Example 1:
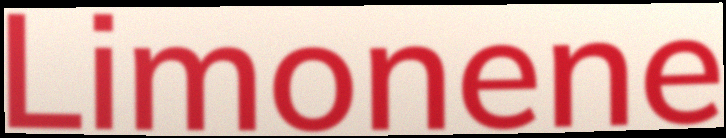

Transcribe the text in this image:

Limonene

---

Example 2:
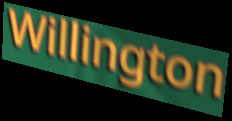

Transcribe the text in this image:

Willington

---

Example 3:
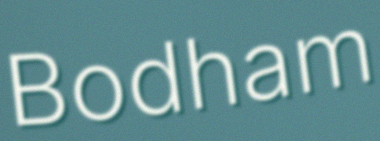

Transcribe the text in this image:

Bodham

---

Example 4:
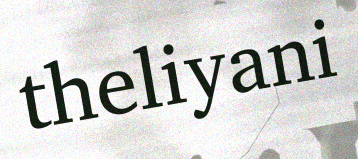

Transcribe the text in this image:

theliyani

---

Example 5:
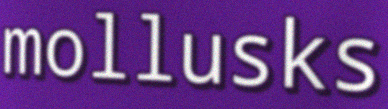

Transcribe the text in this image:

mollusks